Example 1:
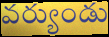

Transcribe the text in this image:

వర్యుండు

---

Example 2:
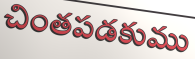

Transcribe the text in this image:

చింతపడకుము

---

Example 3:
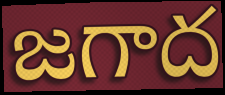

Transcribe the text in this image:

జగాద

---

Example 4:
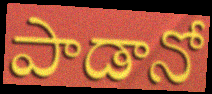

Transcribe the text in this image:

పాడానో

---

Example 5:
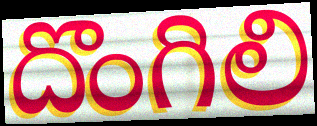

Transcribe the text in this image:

దొంగిలి